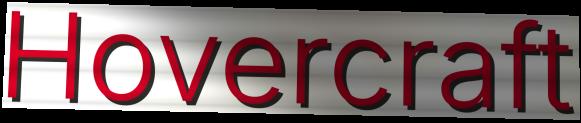
Hovercraft